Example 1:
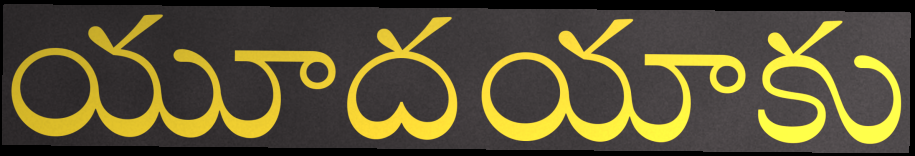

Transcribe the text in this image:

యూదయాకు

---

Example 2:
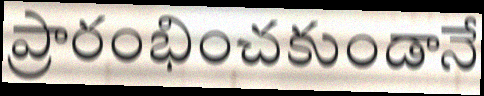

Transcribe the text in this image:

ప్రారంభించకుండానే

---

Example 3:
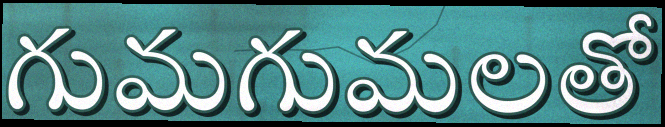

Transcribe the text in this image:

గుమగుమలతో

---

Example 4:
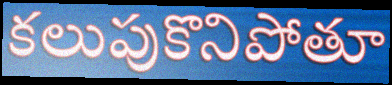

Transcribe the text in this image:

కలుపుకొనిపోతూ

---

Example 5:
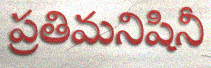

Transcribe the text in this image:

ప్రతిమనిషినీ